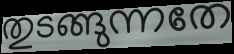
തുടങ്ങുന്നതേ